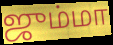
ஜும்மா